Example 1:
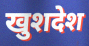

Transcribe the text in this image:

खुशदेश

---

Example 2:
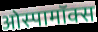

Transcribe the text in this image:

ओस्पामॉक्स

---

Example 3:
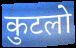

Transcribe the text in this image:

कुटलो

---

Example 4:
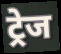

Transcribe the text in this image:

ट्रेज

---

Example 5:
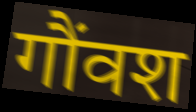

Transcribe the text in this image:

गौंवश